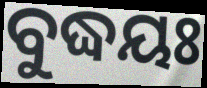
ବୁଦ୍ଧୟଃ